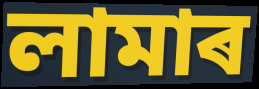
লামাৰ